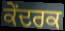
ਕੇਂਦਰਕ